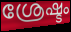
ശ്രേഷ്ടം